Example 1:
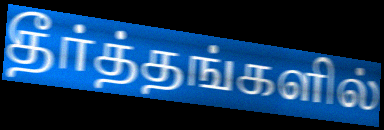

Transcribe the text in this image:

தீர்த்தங்களில்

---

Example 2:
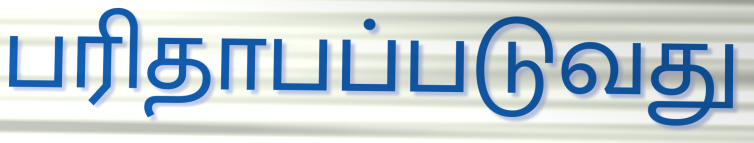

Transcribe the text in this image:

பரிதாபப்படுவது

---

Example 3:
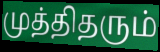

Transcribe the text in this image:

முத்திதரும்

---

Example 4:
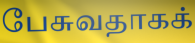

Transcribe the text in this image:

பேசுவதாகக்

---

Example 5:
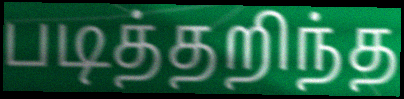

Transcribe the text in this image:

படித்தறிந்த